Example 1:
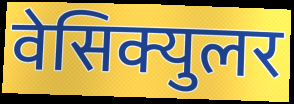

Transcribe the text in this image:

वेसिक्युलर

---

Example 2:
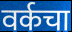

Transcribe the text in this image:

वर्कचा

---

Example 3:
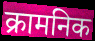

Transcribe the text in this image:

क्रामनिक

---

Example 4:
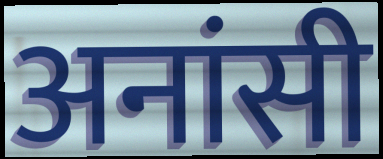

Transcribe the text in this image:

अनांसी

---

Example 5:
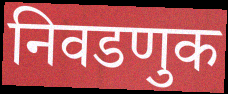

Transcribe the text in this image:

निवडणुक